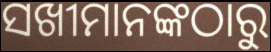
ସଖୀମାନଙ୍କଠାରୁ